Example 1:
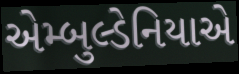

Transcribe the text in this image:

એમ્બુલ્ડેનિયાએ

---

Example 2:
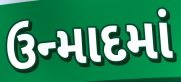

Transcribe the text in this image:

ઉન્માદમાં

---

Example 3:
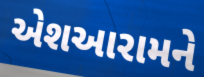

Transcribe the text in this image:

એશઆરામને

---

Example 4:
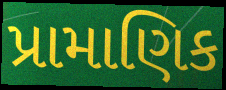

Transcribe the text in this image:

પ્રામાણિક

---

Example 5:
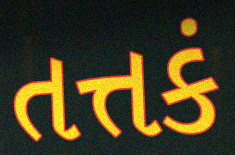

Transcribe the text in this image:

તત્તકં